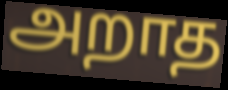
அறாத